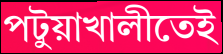
পটুয়াখালীতেই